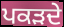
ਪਕੜਦੇ